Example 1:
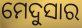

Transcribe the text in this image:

ମେଦୁସାର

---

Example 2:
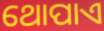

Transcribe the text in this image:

ଥୋପାଏ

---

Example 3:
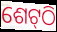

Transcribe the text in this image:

ଶେଟ୍‍ଠି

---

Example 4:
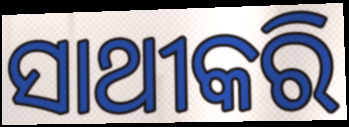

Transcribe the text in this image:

ସାଥୀକରି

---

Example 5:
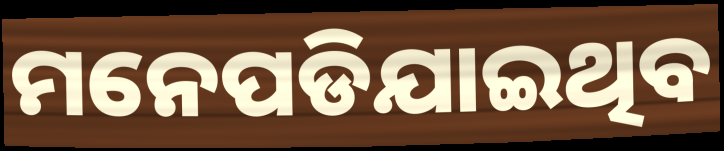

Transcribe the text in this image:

ମନେପଡିଯାଇଥିବ